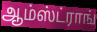
ஆம்ஸ்ட்ராங்